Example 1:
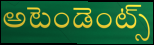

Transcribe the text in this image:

అటెండెంట్స్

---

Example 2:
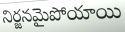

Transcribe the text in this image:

నిర్జనమైపోయాయి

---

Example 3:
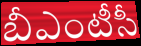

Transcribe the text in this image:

బీఎంటీసీ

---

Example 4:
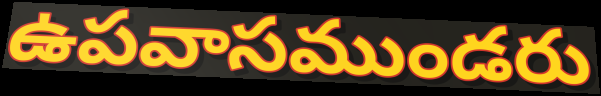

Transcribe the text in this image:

ఉపవాసముండరు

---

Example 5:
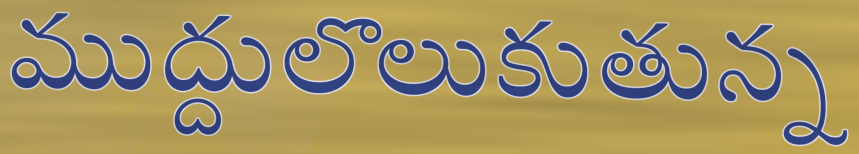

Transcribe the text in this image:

ముద్దులొలుకుతున్న